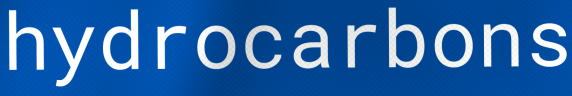
hydrocarbons